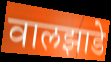
वालझाडे